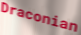
Draconian